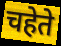
चहेते